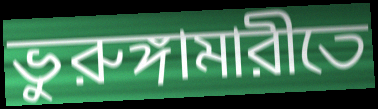
ভুরুঙ্গামারীতে